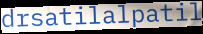
drsatilalpatil